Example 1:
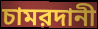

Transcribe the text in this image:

চামরদানী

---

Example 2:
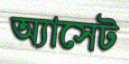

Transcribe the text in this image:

অ্যাসেট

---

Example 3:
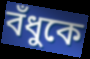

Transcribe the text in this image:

বঁধুকে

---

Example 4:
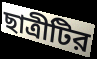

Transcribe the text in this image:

ছাত্রীটির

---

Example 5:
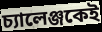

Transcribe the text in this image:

চ্যালেঞ্জকেই